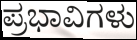
ಪ್ರಭಾವಿಗಳು